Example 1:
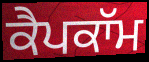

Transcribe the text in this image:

ਕੈਪਕਾੱਮ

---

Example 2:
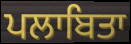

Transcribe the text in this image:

ਪਲਾਬਿਤਾ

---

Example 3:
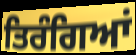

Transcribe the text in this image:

ਤਿਰੰਗਿਆਂ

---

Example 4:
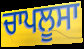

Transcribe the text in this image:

ਚਾਪਲੂਸਾ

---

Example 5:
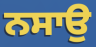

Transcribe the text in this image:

ਨਸਾਉ